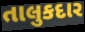
તાલુકદાર